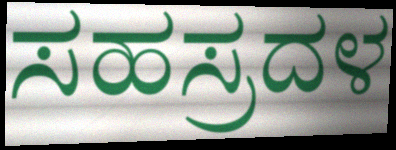
ಸಹಸ್ರದಳ